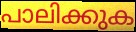
പാലിക്കുക